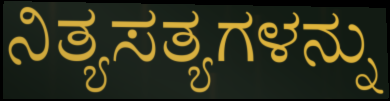
ನಿತ್ಯಸತ್ಯಗಳನ್ನು